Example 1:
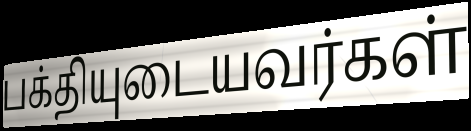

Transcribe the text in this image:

பக்தியுடையவர்கள்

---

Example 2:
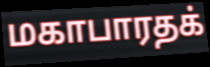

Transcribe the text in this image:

மகாபாரதக்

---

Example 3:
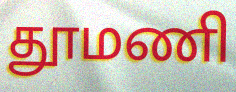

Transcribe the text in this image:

தூமணி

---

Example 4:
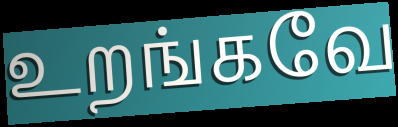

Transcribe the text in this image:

உறங்கவே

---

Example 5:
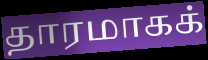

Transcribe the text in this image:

தாரமாகக்